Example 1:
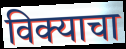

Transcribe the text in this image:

विक्याचा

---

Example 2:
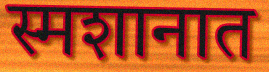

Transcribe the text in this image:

स्मशानात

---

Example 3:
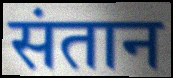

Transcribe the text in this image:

संतान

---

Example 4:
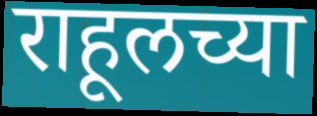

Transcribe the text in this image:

राहूलच्या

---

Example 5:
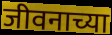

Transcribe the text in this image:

जीवनाच्या